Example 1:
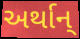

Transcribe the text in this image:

અર્થાન્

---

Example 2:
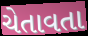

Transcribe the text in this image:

ચેતાવતા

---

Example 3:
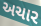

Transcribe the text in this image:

અચાર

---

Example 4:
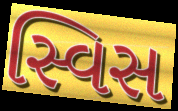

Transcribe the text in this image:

સ્વિસ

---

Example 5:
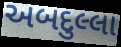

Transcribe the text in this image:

અબદુલ્લા